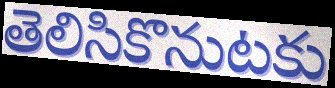
తెలిసికొనుటకు